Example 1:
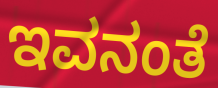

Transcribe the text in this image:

ಇವನಂತೆ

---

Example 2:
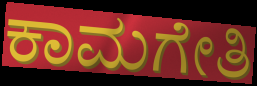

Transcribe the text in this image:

ಕಾಮಗೇತಿ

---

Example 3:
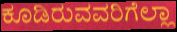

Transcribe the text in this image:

ಕೂಡಿರುವವರಿಗೆಲ್ಲಾ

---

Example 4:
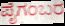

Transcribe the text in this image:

ಪೈಗಂಬರ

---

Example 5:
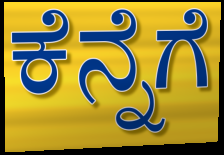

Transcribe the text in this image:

ಕೆನ್ನೆಗೆ